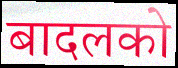
बादलको